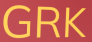
GRK